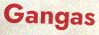
Gangas